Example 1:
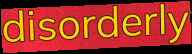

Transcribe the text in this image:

disorderly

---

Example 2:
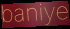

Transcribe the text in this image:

baniye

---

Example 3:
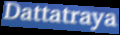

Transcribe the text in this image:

Dattatraya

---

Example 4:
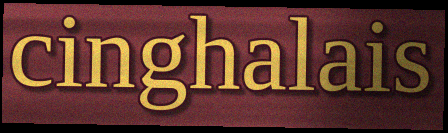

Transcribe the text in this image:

cinghalais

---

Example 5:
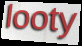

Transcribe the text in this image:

looty